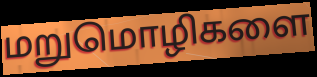
மறுமொழிகளை